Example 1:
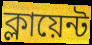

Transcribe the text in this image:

ক্লায়েন্ট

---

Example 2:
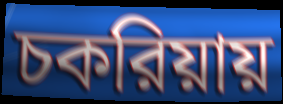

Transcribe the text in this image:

চকরিয়ায়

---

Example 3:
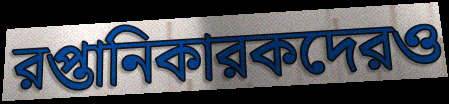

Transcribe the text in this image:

রপ্তানিকারকদেরও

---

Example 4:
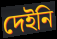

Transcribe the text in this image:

দেইনি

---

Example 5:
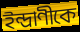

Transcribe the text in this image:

ইন্দ্রাণীকে